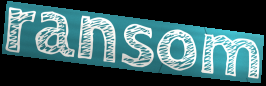
ransom